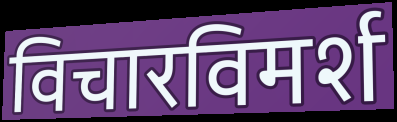
विचारविमर्श